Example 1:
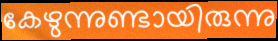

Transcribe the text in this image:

കേഴുന്നുണ്ടായിരുന്നു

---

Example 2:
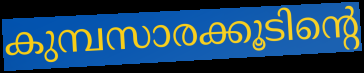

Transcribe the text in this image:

കുമ്പസാരക്കൂടിന്റെ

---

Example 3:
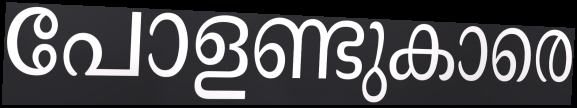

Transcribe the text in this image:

പോളണ്ടുകാരെ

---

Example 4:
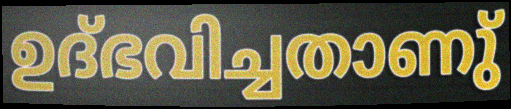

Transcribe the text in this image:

ഉദ്ഭവിച്ചതാണു്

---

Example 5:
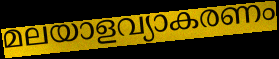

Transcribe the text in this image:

മലയാളവ്യാകരണം